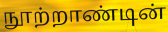
நூற்றாண்டின்